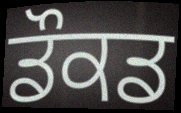
ਡੌਕਡ